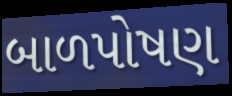
બાળપોષણ